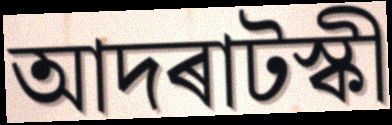
আদৰাটস্কী